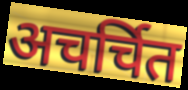
अचर्चित